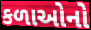
કળાઓનો